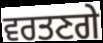
ਵਰਤਣਗੇ